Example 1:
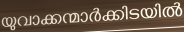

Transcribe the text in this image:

യുവാക്കന്മാർക്കിടയിൽ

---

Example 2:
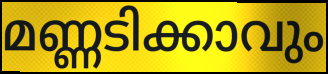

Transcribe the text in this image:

മണ്ണടിക്കാവും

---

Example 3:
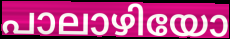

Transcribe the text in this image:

പാലാഴിയോ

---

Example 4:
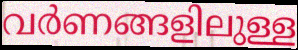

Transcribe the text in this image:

വർണങ്ങളിലുള്ള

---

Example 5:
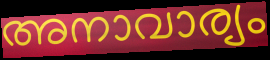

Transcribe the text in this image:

അനാവാര്യം